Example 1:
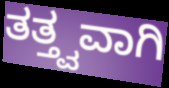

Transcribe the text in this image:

ತತ್ತ್ವವಾಗಿ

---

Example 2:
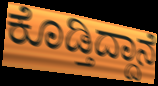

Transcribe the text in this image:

ಕೊಡ್ತಿದ್ದಾನೆ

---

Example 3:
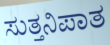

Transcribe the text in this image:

ಸುತ್ತನಿಪಾತ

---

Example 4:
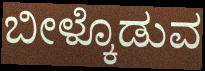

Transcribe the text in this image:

ಬೀಳ್ಕೊಡುವ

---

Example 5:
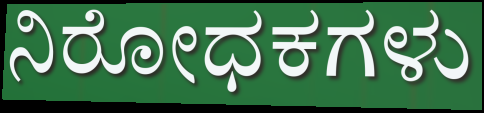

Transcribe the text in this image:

ನಿರೋಧಕಗಳು